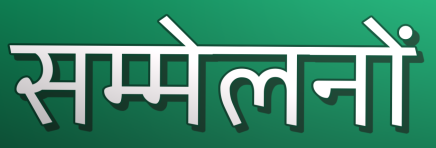
सम्मेलनों